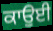
ਕਾਉਈ